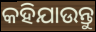
କହିଯାଉନ୍ତୁ